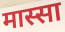
मास्सा